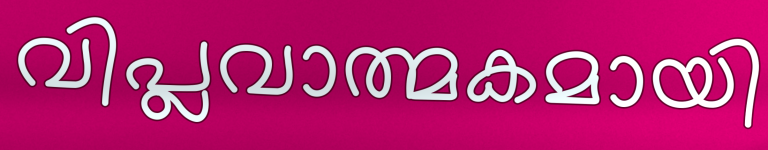
വിപ്ലവാത്മകമായി